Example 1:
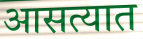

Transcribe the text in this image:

आसत्यात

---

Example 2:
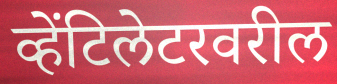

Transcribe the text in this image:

व्हेंटिलेटरवरील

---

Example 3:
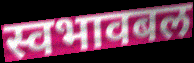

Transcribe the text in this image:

स्वभावबल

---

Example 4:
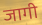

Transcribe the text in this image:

जागी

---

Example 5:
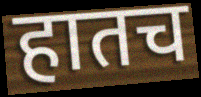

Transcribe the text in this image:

हातच